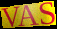
VAS